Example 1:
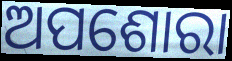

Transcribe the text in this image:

ଅପଶୋରା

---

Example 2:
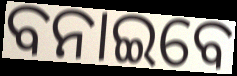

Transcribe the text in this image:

ବନାଇବେ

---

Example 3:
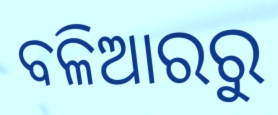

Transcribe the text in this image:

ବଳିଆରରୁ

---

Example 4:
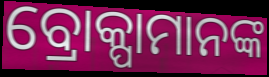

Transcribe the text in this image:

ବ୍ରୋକ୍ପାମାନଙ୍କ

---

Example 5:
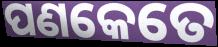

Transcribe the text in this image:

ପଣକେତେ